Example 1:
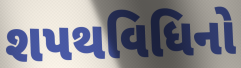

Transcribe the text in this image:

શપથવિધિનો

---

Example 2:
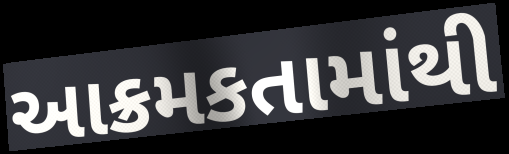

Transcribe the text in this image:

આક્રમકતામાંથી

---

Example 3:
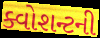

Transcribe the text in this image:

ક્વોશન્ટની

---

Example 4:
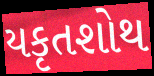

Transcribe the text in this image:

યકૃતશોથ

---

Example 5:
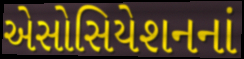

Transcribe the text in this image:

એસોસિયેશનનાં